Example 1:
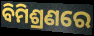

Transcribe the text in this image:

ବିମିଶ୍ରଣରେ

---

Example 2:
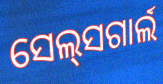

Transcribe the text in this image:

ସେଲ୍‍ସଗାର୍ଲ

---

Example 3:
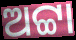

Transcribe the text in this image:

ଅଟ୍ଟା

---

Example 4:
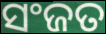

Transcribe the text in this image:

ସଂଜତ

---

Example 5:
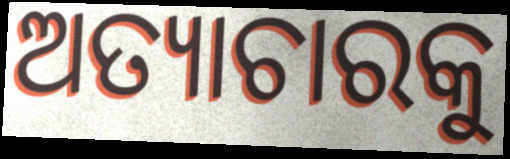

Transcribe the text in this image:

ଅତ୍ୟାଚାରକୁ